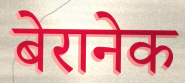
बेरानेक